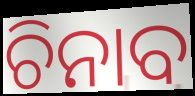
ଚିନାବ